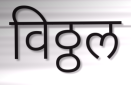
विठ्ठल